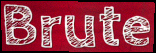
Brute